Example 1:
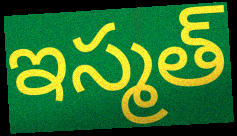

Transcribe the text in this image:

ఇస్మత్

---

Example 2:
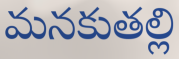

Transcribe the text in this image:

మనకుతల్లి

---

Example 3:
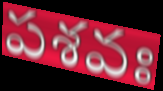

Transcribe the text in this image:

పశవః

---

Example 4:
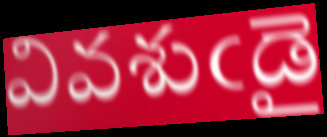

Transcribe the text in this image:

వివశుఁడై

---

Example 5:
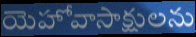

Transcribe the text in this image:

యెహోవాసాక్షులను